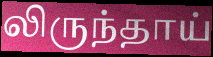
லிருந்தாய்